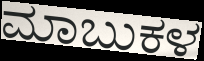
ಮಾಬುಕಳ